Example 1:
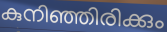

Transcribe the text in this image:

കുനിഞ്ഞിരിക്കും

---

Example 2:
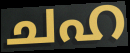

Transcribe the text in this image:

ചഹ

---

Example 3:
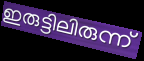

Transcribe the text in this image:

ഇരുട്ടിലിരുന്ന്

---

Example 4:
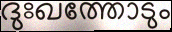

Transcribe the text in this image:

ദുഃഖത്തോടും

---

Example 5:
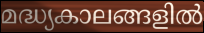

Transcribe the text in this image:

മദ്ധ്യകാലങ്ങളിൽ